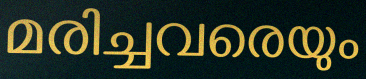
മരിച്ചവരെയും